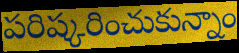
పరిష్కరించుకున్నాం